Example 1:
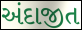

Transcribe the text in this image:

અંદાજીત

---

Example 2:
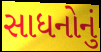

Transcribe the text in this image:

સાધનોનું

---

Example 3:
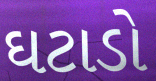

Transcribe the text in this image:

ઘટાડો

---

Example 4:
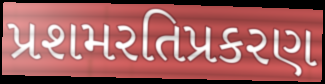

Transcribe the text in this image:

પ્રશમરતિપ્રકરણ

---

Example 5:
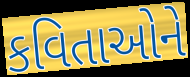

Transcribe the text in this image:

કવિતાઓને